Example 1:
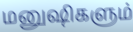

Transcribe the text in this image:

மனுஷிகளும்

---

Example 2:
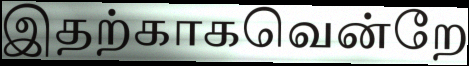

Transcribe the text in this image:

இதற்காகவென்றே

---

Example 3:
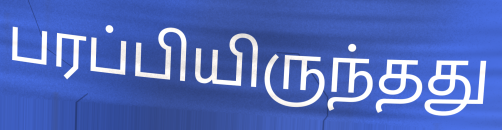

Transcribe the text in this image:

பரப்பியிருந்தது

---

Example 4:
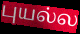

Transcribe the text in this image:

புயல்ல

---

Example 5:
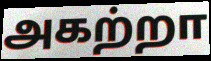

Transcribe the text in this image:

அகற்றா